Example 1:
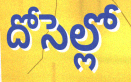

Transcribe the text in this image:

దోసెల్లో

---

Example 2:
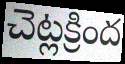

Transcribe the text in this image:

చెట్లక్రింద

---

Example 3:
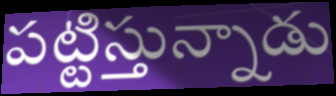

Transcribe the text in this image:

పట్టిస్తున్నాడు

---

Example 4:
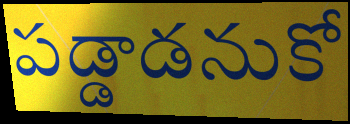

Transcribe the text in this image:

పడ్డాడనుకో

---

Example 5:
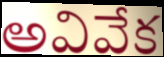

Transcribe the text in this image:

అవివేక